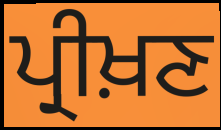
ਪ੍ਰੀਖ਼ਣ